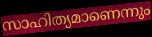
സാഹിത്യമാണെന്നും